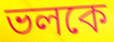
ভলকে